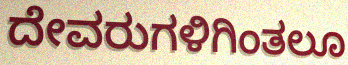
ದೇವರುಗಳಿಗಿಂತಲೂ